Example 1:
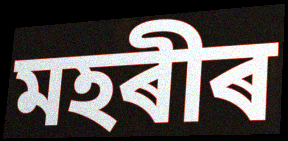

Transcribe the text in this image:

মহৰীৰ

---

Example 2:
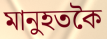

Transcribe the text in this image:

মানুহতকৈ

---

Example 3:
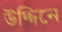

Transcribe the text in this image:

উদ্দিনে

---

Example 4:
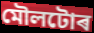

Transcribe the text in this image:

মৌলটোৰ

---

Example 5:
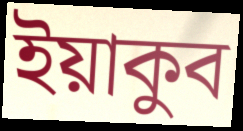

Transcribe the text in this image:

ইয়াকুব